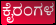
ಕೈರಂಗಳ